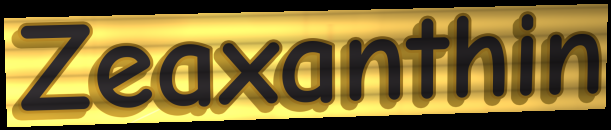
Zeaxanthin